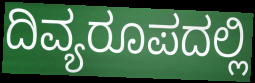
ದಿವ್ಯರೂಪದಲ್ಲಿ